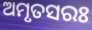
ଅମୃତସରଃ